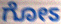
ಗೋಽ